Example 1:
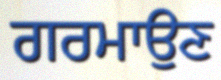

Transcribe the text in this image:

ਗਰਮਾਉਣ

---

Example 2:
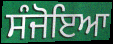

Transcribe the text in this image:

ਸੰਜੋਇਆ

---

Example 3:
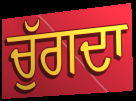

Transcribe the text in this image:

ਚੁੱਗਦਾ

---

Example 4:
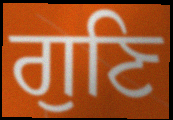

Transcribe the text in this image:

ਗੁਣਿ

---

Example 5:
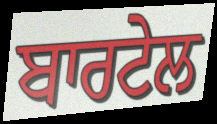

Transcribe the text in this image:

ਬਾਰਟੇਲ